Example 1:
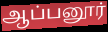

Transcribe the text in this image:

ஆப்பனூர்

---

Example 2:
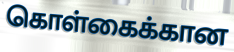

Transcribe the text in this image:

கொள்கைக்கான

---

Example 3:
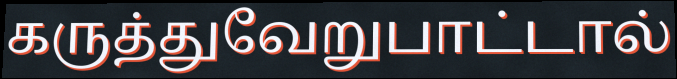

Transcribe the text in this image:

கருத்துவேறுபாட்டால்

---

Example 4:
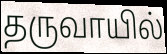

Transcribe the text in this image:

தருவாயில்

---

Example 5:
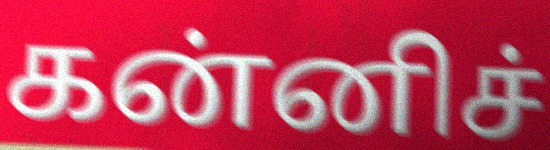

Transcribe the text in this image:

கன்னிச்